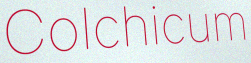
Colchicum